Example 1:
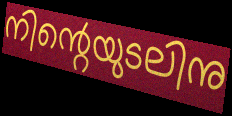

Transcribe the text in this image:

നിന്റെയുടലിനു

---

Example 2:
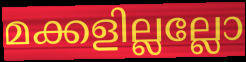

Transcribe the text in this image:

മക്കളില്ലല്ലോ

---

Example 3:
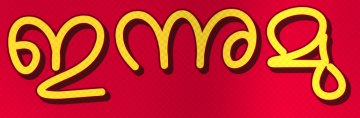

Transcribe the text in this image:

ഇന്നുമു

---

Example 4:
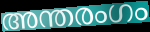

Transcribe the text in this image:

അന്തരംഗം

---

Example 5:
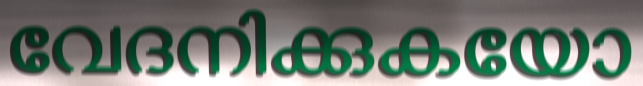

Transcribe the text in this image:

വേദനിക്കുകയോ